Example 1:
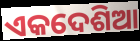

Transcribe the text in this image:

ଏକଦେଶିଆ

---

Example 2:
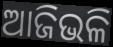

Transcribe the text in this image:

ଆଜିଭଳି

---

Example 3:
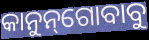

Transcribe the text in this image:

କାନୁନ୍‌ଗୋବାବୁ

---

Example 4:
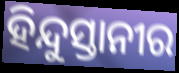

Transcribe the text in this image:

ହିନ୍ଦୁସ୍ତାନୀର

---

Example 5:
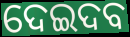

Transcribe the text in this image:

ଦେଇଦବ